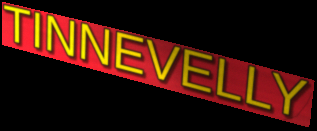
TINNEVELLY